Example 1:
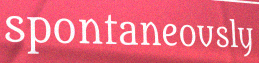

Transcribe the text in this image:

spontaneously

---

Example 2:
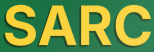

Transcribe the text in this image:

SARC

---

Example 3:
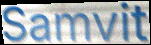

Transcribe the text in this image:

Samvit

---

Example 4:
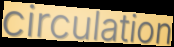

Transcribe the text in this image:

circulation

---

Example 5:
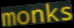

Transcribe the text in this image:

monks